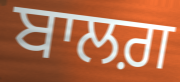
ਬਾਲਗ਼